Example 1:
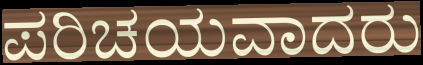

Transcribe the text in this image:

ಪರಿಚಯವಾದರು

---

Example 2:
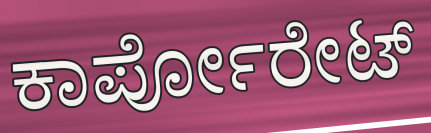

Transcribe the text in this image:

ಕಾರ್ಪೋರೇಟ್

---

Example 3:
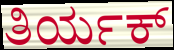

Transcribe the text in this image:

ತಿರ್ಯಕ್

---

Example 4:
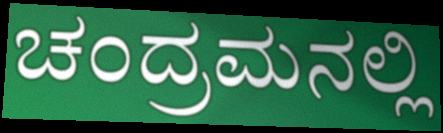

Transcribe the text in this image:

ಚಂದ್ರಮನಲ್ಲಿ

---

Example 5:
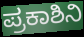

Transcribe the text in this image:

ಪ್ರಕಾಶಿನಿ